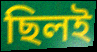
ছিলই